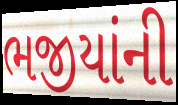
ભજીયાંની